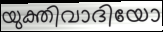
യുക്തിവാദിയോ